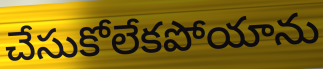
చేసుకోలేకపోయాను